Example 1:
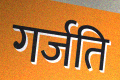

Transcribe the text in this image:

गर्जति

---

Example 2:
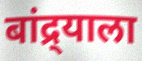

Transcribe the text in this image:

बांद्र्याला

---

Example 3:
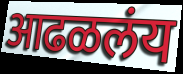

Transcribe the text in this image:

आढळलंय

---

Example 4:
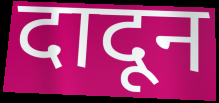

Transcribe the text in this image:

दादून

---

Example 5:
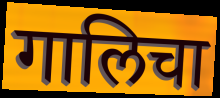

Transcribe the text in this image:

गालिचा